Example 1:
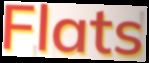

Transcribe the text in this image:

Flats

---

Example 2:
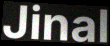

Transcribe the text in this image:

Jinal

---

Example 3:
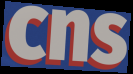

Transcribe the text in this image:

cns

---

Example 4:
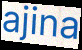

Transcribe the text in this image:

ajina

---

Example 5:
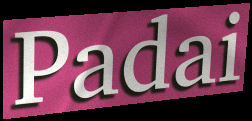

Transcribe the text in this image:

Padai